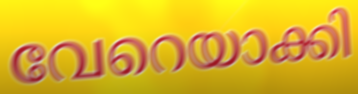
വേറെയാക്കി